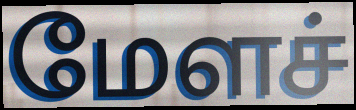
மேளச்